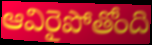
ఆవిరైపోతోంది